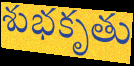
శుభకృతు